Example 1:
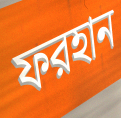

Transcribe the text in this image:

ফরহান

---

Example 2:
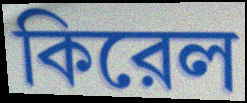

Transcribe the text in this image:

কিরেল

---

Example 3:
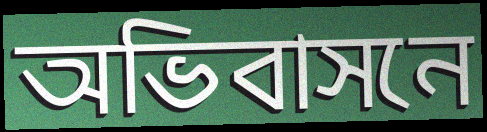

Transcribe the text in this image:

অভিবাসনে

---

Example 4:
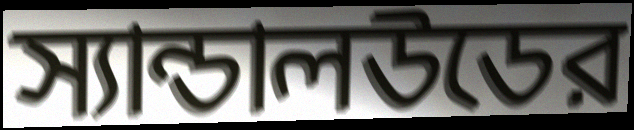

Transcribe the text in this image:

স্যান্ডালউডের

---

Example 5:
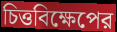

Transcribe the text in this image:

চিত্তবিক্ষেপের